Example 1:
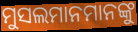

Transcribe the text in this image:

ମୁସଲମାନମାନଙ୍କୁ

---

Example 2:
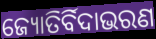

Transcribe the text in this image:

ଜ୍ୟୋତିର୍ବିଦାଭରଣ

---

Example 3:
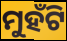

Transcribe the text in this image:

ମୁହଁଟି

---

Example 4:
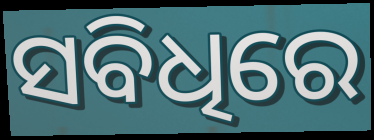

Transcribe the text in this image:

ସବିଧିରେ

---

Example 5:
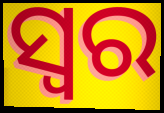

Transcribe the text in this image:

ସ୍ବର